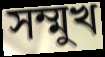
সম্মুখ